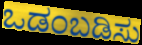
ಒಡಂಬಡಿಸು